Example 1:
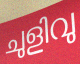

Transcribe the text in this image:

ചുളിവു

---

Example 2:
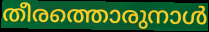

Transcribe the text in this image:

തീരത്തൊരുനാൾ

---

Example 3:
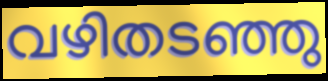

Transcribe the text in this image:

വഴിതടഞ്ഞു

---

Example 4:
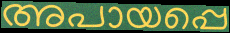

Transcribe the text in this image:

അപായപ്പെ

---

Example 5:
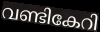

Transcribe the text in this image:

വണ്ടികേറി